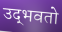
उद्‌भवतो